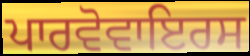
ਪਾਰਵੋਵਾਇਰਸ